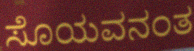
ಸೊಯವನಂತ